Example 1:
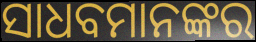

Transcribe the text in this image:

ସାଧବମାନଙ୍କର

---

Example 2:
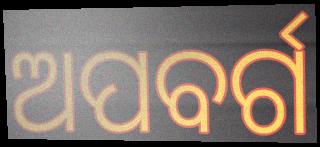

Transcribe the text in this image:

ଅପବର୍ଗ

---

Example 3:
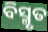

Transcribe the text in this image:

ବିସ୍ମୃତ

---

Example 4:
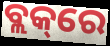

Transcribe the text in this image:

ବ୍ଲକ୍‌ରେ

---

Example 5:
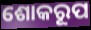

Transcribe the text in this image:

ଶୋକରୂପ